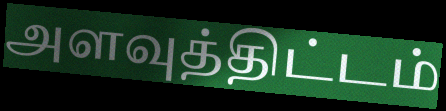
அளவுத்திட்டம்